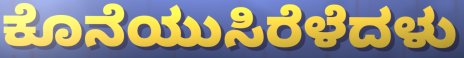
ಕೊನೆಯುಸಿರೆಳೆದಳು